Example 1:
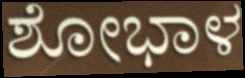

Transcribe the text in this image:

ಶೋಭಾಳ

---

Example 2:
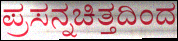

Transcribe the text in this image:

ಪ್ರಸನ್ನಚಿತ್ತದಿಂದ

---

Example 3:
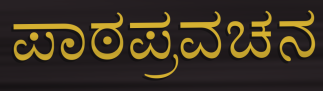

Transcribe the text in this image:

ಪಾಠಪ್ರವಚನ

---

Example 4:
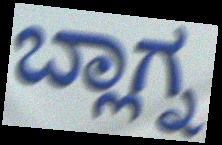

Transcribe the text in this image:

ಬ್ಲಾಗ್ನ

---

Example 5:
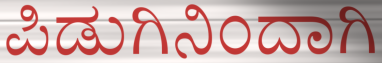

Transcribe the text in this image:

ಪಿಡುಗಿನಿಂದಾಗಿ